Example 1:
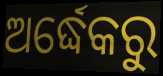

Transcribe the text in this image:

ଅର୍ଦ୍ଧେକରୁ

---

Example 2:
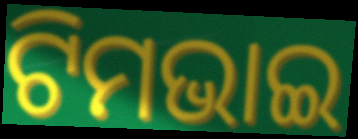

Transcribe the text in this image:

ଟିମଭାଇ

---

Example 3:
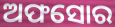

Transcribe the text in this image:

ଅଫସୋର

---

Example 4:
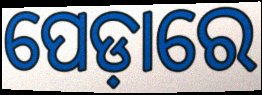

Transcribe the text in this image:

ପେଡ଼ାରେ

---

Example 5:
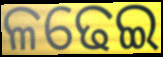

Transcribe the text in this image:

ଳଢେଇ